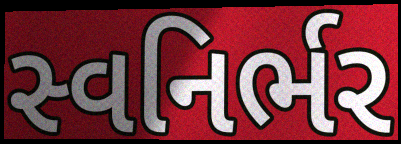
સ્વનિર્ભર